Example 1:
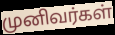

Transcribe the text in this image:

முனிவர்கள்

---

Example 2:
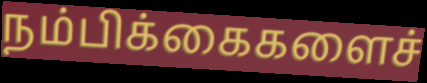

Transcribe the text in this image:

நம்பிக்கைகளைச்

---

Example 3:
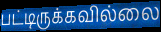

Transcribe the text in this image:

பட்டிருக்கவில்லை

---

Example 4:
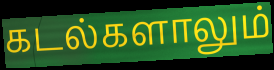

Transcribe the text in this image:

கடல்களாலும்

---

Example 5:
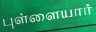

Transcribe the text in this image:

புள்ளையார்